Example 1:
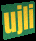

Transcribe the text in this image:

ujli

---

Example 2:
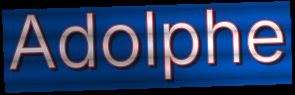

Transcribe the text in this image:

Adolphe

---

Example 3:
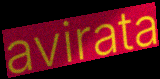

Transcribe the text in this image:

avirata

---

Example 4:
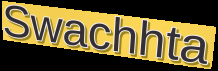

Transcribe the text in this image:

Swachhta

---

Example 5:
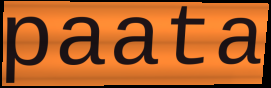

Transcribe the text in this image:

paata